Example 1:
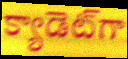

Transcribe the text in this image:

క్యాడెట్‌గా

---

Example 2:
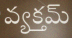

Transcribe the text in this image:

వ్యక్తమ్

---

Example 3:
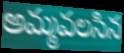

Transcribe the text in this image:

అమ్మవలసిన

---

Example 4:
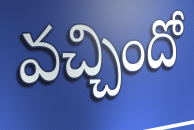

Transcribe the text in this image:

వచ్చిందో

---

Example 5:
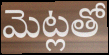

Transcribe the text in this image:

మెట్లతో